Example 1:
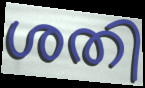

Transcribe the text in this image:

ശതി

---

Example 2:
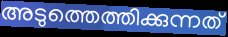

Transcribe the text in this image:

അടുത്തെത്തിക്കുന്നത്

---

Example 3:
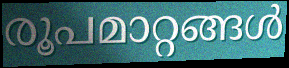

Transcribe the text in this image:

രൂപമാറ്റങ്ങൾ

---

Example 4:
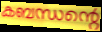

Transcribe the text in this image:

കബന്ധന്റെ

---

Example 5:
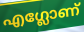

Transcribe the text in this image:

എഗ്ലോണ്